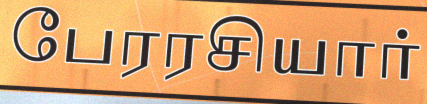
பேரரசியார்